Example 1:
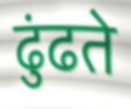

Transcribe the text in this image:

ढुंढते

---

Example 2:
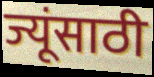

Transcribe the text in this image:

ज्यूंसाठी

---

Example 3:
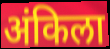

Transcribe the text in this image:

अंकिला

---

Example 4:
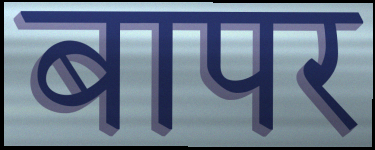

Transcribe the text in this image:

बापर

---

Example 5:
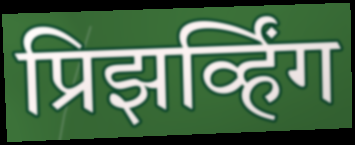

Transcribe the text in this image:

प्रिझर्व्हिंग